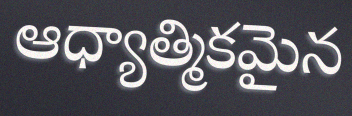
ఆధ్యాత్మికమైన